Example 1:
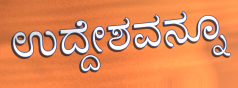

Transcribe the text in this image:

ಉದ್ದೇಶವನ್ನೂ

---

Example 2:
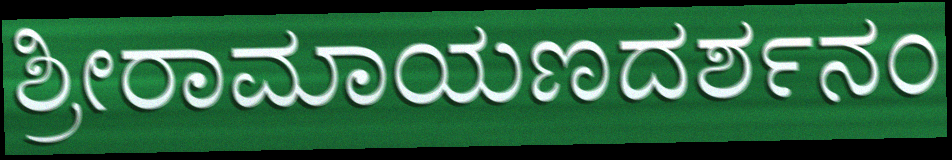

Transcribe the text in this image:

ಶ್ರೀರಾಮಾಯಣದರ್ಶನಂ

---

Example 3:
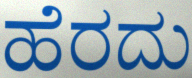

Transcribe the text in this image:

ಹೆರದು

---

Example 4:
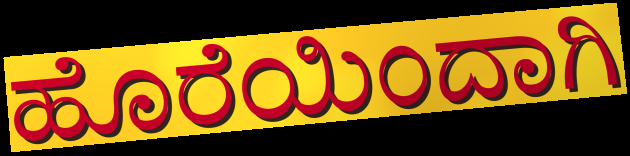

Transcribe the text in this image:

ಹೊರೆಯಿಂದಾಗಿ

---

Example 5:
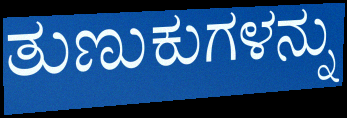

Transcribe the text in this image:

ತುಣುಕುಗಳನ್ನು